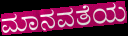
ಮಾನವತೆಯ